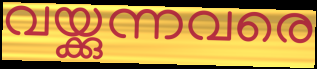
വയ്ക്കുന്നവരെ